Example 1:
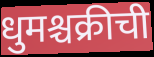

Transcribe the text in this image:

धुमश्चक्रीची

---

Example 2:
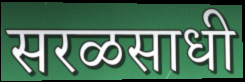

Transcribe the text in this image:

सरळसाधी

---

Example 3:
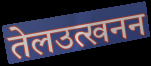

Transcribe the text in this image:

तेलउत्खनन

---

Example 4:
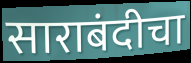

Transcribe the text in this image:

साराबंदीचा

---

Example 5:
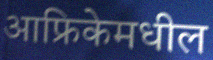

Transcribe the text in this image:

आफ्रिकेमधील